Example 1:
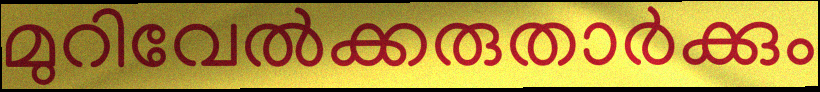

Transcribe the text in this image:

മുറിവേൽക്കരുതാർക്കും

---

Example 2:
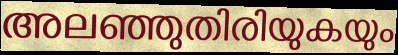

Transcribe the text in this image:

അലഞ്ഞുതിരിയുകയും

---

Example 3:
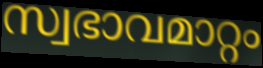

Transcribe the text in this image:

സ്വഭാവമാറ്റം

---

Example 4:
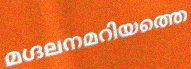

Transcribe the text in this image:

മഗ്ദലനമറിയത്തെ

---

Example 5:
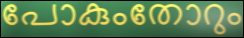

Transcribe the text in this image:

പോകുംതോറും